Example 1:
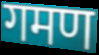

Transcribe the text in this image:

गमण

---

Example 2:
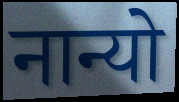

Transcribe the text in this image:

नान्यो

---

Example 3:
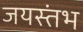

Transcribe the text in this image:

जयस्तंभ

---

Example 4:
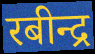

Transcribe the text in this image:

रबीन्द्र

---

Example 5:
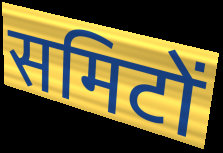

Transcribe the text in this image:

समिटों